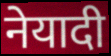
नेयादी